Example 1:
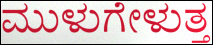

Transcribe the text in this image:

ಮುಳುಗೇಳುತ್ತ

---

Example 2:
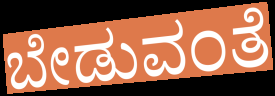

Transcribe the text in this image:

ಬೇಡುವಂತೆ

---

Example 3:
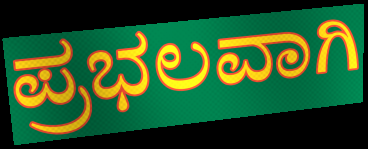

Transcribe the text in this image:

ಪ್ರಭಲವಾಗಿ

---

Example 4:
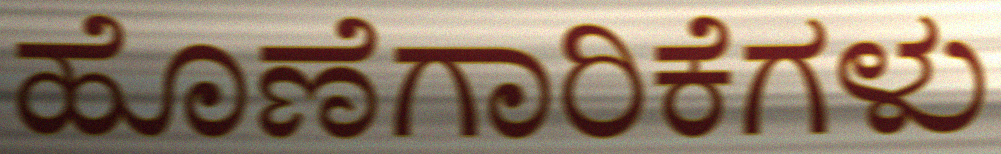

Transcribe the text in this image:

ಹೊಣೆಗಾರಿಕೆಗಳು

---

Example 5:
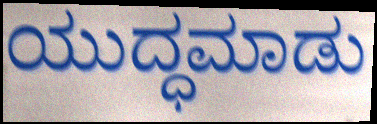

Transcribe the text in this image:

ಯುದ್ಧಮಾಡು